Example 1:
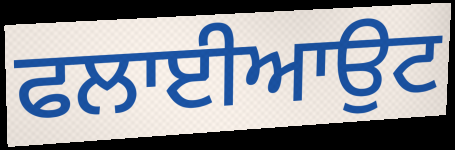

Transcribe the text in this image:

ਫਲਾਈਆਉਟ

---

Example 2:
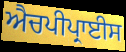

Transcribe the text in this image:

ਐਚਪੀਪ੍ਰਾਈਸ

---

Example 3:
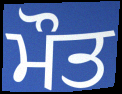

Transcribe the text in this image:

ਮੌਤ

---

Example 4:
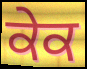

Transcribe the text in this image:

ਕੇਕ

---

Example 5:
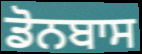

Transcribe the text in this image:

ਡੋਨਬਾਸ